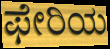
ಫೇರಿಯ